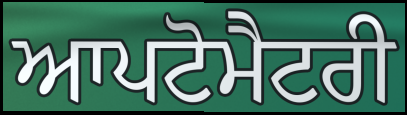
ਆਪਟੋਮੈਟਰੀ